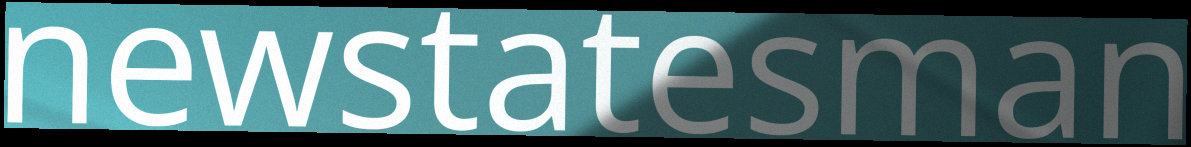
newstatesman